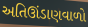
અતિઊંડાણવાળો